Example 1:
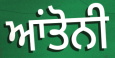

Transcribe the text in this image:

ਆਂਤੋਨੀ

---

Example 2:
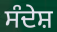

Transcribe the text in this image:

ਸੰਦੇਸ਼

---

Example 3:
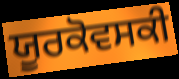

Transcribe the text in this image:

ਯੂਰਕੋਵਸਕੀ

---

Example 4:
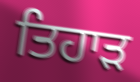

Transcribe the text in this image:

ਤਿਹਾੜ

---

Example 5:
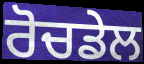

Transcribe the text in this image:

ਰੋਚਡੇਲ